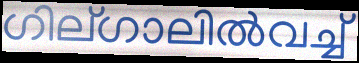
ഗില്ഗാലിൽവച്ച്